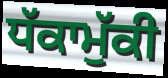
ਧੱਕਾਮੁੱਕੀ